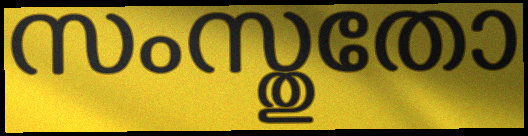
സംസ്തുതോ